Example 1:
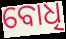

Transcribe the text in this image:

ବୋଧି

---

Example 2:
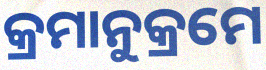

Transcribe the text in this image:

କ୍ରମାନୁକ୍ରମେ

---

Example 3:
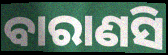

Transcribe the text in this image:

ବାରାଣସି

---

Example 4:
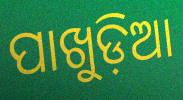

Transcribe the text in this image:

ପାଖୁଡ଼ିଆ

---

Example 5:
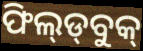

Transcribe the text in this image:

ଫିଲ୍‍ଡ୍‍ବୁକ୍